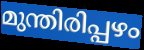
മുന്തിരിപ്പഴം